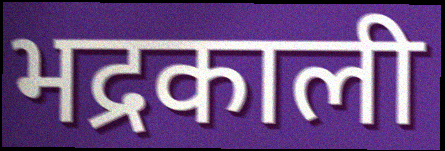
भद्रकाली